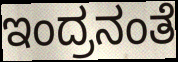
ಇಂದ್ರನಂತೆ